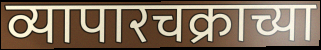
व्यापारचक्राच्या